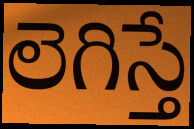
లెగిస్తే